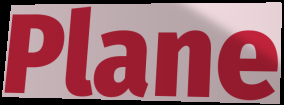
Plane